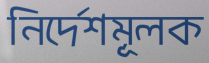
নির্দেশমূলক